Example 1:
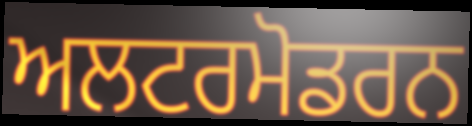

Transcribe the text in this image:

ਅਲਟਰਮੋਡਰਨ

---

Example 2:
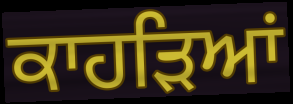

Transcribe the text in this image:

ਕਾਹੜਿਆਂ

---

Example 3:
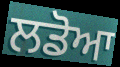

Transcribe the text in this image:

ਲਡੋਆ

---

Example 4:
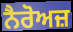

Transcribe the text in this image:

ਨੈਰੋਅਜ਼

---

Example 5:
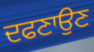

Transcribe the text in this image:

ਦਫਣਾਉਣ